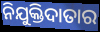
ନିଯୁକ୍ତିଦାତାର